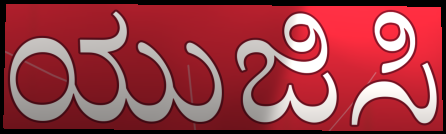
ಯುಜಿಸಿ